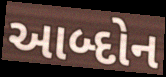
આબ્દોન